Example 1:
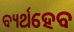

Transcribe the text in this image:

ବ୍ୟର୍ଥହେବ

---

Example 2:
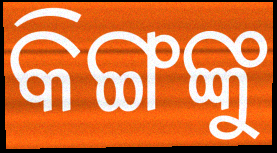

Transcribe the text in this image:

କିଙ୍ଗଙ୍କୁ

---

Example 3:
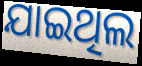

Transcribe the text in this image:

ଯାଇଥିଲ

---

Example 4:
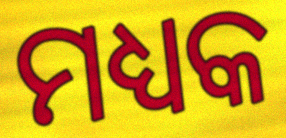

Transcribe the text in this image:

ମଧ୍ଯକ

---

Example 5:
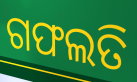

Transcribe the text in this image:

ଗଫଲତି